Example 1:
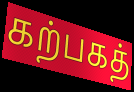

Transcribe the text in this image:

கற்பகத்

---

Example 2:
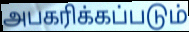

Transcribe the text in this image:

அபகரிக்கப்படும்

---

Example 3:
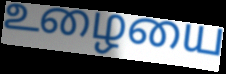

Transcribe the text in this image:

உழையை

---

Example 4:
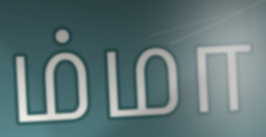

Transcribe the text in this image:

ம்மா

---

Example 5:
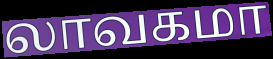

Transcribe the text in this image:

லாவகமா